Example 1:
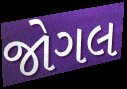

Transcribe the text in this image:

જોગલ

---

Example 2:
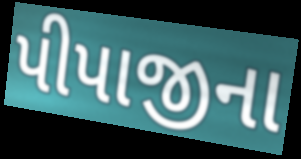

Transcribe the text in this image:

પીપાજીના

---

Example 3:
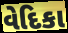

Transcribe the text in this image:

વેદિકા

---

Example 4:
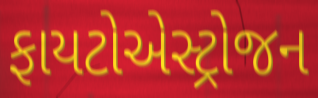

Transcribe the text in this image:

ફાયટોએસ્ટ્રોજન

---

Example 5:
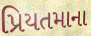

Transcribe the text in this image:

પ્રિયતમાના